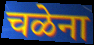
चळेना